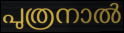
പുത്രനാൽ